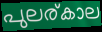
പുലര്കാല